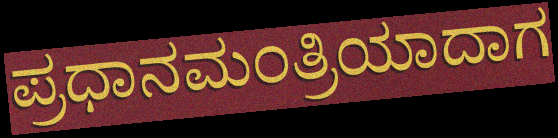
ಪ್ರಧಾನಮಂತ್ರಿಯಾದಾಗ